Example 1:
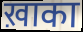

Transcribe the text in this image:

ख़ाका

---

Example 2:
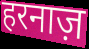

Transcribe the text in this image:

हरनाज़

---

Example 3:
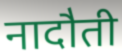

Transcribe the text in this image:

नादौती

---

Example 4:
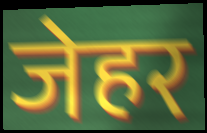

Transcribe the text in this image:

जेहर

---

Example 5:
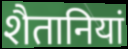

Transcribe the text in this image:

शैतानियां